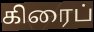
கிரைப்